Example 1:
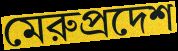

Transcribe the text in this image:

মেরুপ্রদেশ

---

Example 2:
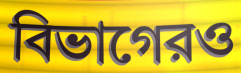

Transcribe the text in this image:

বিভাগেরও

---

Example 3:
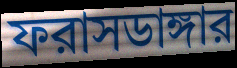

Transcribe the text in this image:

ফরাসডাঙ্গার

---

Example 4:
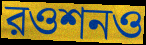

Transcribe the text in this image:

রওশনও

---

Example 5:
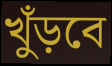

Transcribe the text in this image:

খুঁড়বে